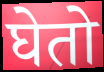
घेतो